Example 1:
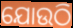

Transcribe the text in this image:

ଯୋଉଠି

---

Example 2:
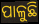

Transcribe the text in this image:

ପାଳୁଛି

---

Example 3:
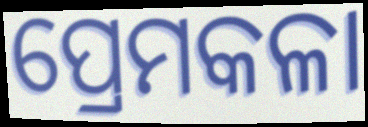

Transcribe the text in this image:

ପ୍ରେମକଳା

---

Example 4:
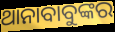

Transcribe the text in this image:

ଥାନାବାବୁଙ୍କର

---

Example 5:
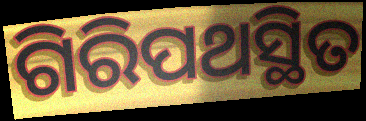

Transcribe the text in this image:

ଗିରିପଥସ୍ଥିତ